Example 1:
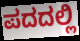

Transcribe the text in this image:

ಪದದಲ್ಲಿ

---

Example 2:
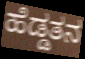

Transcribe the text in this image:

ಹೆಡ್ಡತನ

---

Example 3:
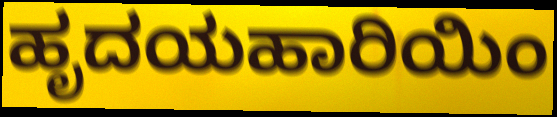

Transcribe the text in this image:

ಹೃದಯಹಾರಿಯಿಂ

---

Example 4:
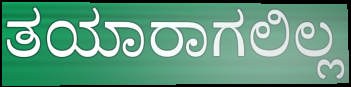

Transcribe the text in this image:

ತಯಾರಾಗಲಿಲ್ಲ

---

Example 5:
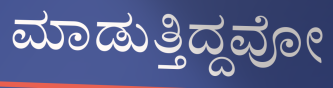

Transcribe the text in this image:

ಮಾಡುತ್ತಿದ್ದವೋ